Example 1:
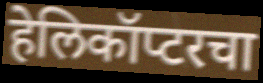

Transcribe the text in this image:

हेलिकॉप्टरचा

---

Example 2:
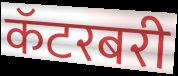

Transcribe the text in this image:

कॅटरबरी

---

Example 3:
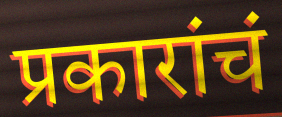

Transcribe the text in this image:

प्रकारांचं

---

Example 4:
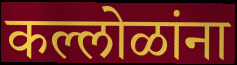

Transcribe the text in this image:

कल्लोळांना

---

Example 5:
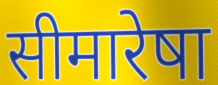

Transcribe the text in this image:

सीमारेषा